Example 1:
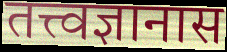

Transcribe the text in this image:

तत्त्वज्ञानास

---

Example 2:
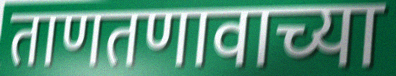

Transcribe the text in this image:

ताणतणावाच्या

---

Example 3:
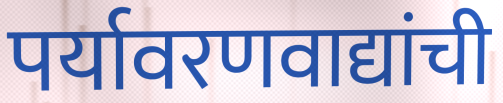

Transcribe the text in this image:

पर्यावरणवाद्यांची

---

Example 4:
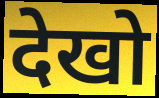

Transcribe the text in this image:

देखो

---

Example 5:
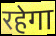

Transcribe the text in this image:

रहेगा